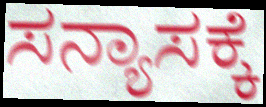
ಸನ್ಯಾಸಕ್ಕೆ